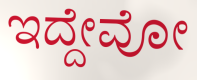
ಇದ್ದೇವೋ